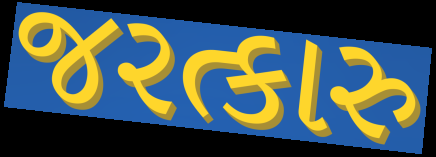
જરત્કારુ